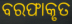
ବରଫାକୃତ